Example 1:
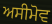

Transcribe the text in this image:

ਅਸੀਮੋਵ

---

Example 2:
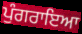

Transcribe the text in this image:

ਪੁੰਗਰਾਇਆ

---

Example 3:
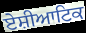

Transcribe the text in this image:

ਏਸ਼ੀਆਟਿਕ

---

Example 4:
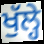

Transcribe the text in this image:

ਖੁੱਲ੍ਹੇ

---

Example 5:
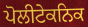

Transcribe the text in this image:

ਪੋਲੀਟੇਕਨਿਕ